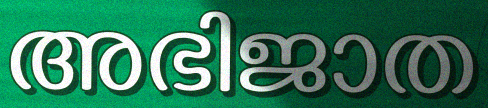
അഭിജാത